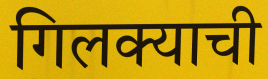
गिलक्याची